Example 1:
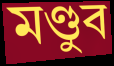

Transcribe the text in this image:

মণ্ডুব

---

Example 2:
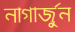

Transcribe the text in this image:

নাগাৰ্জুন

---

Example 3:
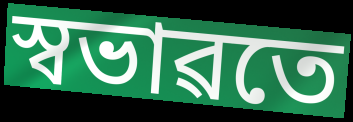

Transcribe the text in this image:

স্বভাৱতে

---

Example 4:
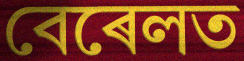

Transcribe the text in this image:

বেৰেলত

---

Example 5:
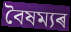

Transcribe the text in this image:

বৈষম্যৰ